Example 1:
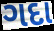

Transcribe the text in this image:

ગદા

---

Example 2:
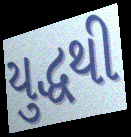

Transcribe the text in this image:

યુદ્ધથી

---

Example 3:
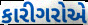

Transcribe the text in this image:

કારીગરોએ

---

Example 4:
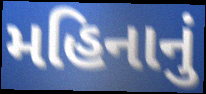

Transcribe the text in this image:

મહિનાનું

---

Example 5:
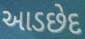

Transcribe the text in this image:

આડછેદ